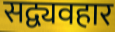
सद्व्यवहार